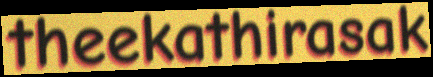
theekathirasak